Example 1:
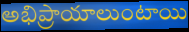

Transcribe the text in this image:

అభిప్రాయాలుంటాయి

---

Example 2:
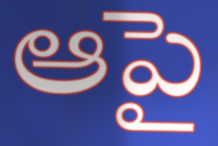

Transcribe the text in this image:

ఆపై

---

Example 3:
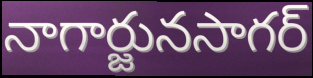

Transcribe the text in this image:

నాగార్జునసాగర్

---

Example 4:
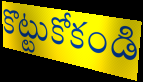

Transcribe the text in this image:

కొట్టుకోకండి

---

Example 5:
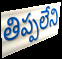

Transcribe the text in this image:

తిప్పలేని